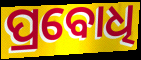
ପ୍ରବୋଧି